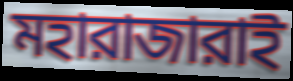
মহারাজারাই